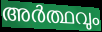
അർത്ഥവും